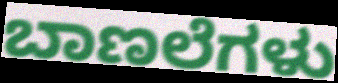
ಬಾಣಲೆಗಳು